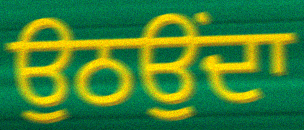
ਉਠਉਂਦਾ